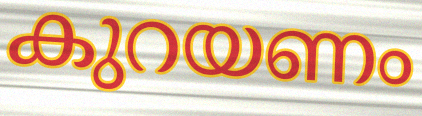
കുറയണം